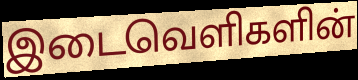
இடைவெளிகளின்